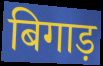
बिगाड़